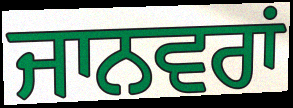
ਜਾਨਵਰਾਂ